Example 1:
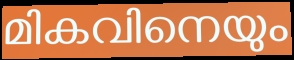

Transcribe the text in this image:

മികവിനെയും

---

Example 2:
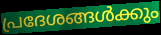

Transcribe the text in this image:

പ്രദേശങ്ങൾക്കും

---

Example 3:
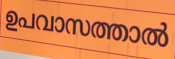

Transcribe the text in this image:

ഉപവാസത്താൽ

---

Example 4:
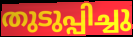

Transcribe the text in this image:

തുടുപ്പിച്ചു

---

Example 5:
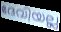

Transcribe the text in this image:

ദേവിയല്ല